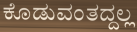
ಕೊಡುವಂತದ್ದಲ್ಲ